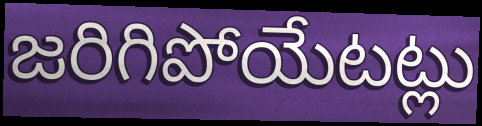
జరిగిపోయేటట్లు